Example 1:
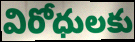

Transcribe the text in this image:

విరోధులకు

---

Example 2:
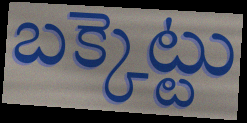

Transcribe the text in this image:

బక్కెట్టు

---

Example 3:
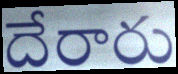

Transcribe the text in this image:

దేరారు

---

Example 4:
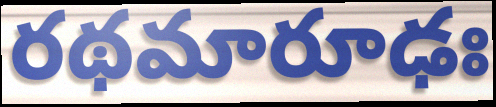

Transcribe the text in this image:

రథమారూఢః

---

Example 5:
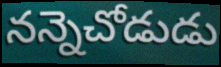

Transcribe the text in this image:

నన్నెచోడుడు